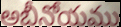
అబీనోయము